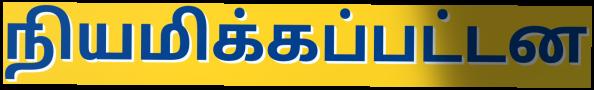
நியமிக்கப்பட்டன